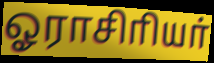
ஓராசிரியர்